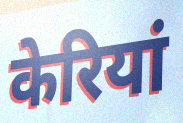
केरियां